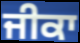
ਜੀਕਾ